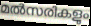
മൽസരികളും